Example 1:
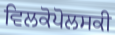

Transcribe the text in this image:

ਵਿਲਕੋਪੋਲਸਕੀ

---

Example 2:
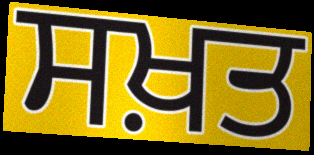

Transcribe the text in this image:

ਸਖ਼ਤ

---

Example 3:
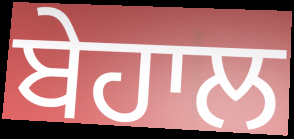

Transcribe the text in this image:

ਬੇਹਾਲ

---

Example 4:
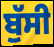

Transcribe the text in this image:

ਬੁੱਸੀ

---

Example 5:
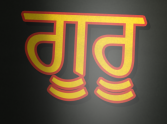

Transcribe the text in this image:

ਗੂਰੂ